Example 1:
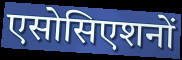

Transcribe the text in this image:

एसोसिएशनों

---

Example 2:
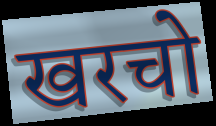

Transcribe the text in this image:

खरचो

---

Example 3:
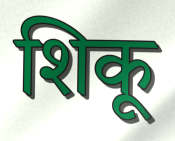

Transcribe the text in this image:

शिकू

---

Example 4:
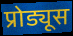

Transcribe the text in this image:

प्रोड्यूस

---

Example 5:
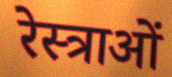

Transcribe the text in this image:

रेस्त्राओं